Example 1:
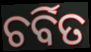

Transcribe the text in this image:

ଚର୍ବିତ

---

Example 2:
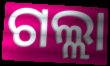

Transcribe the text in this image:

ଗଲ୍ଲା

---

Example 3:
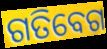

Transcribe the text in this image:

ଗତିବେଗ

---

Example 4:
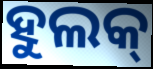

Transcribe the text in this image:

ହୁଲକ୍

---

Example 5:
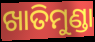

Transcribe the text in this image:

ଖାତିମୁଣ୍ଡା